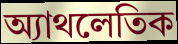
অ্যাথলেতিক